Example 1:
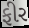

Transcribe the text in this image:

ફીર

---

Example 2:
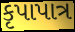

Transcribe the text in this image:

કૃપાપાત્ર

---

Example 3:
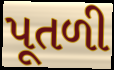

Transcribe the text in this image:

પૂતળી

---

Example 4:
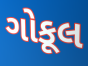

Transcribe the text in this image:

ગોકૂલ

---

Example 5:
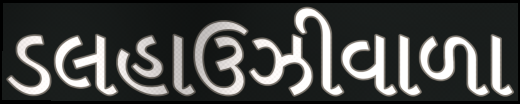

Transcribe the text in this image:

ડલહાઉઝીવાળા